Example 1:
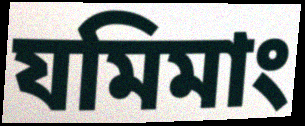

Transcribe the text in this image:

যমিমাং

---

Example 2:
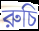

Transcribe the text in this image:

রুচি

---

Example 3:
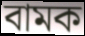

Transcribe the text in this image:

বামক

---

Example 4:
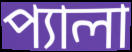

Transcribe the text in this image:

প্যালা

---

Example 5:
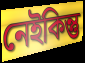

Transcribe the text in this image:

নেইকিন্তু